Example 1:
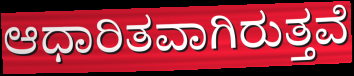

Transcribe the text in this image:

ಆಧಾರಿತವಾಗಿರುತ್ತವೆ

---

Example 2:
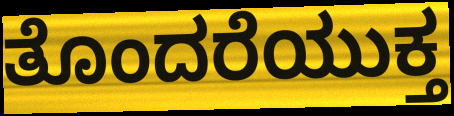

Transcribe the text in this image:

ತೊಂದರೆಯುಕ್ತ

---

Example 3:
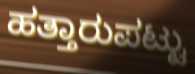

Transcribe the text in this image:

ಹತ್ತಾರುಪಟ್ಟು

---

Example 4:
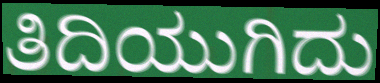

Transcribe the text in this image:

ತಿದಿಯುಗಿದು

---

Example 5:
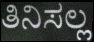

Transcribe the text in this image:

ತಿನಿಸಲ್ಲ